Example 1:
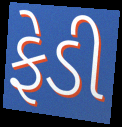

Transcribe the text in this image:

ફેડી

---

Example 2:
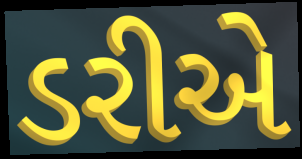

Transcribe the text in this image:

ડરીએ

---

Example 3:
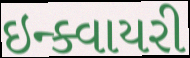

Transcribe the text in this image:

ઇન્ક્વાયરી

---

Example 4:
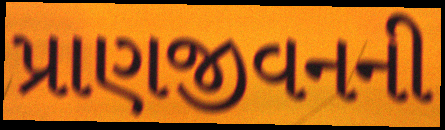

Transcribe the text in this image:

પ્રાણજીવનની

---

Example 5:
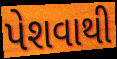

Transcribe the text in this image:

પેશવાથી